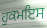
ਹੁਕਮਇਸ